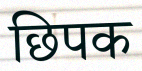
छिपक